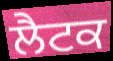
ਲੈਟਕ